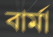
বাৰ্মা